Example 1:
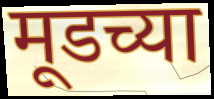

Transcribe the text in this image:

मूडच्या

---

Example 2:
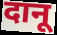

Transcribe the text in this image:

दानू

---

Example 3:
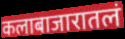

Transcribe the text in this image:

कलाबाजारातलं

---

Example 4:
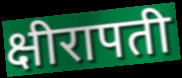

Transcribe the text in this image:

क्षीरापती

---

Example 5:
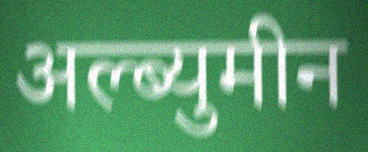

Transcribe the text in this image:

अल्ब्युमीन